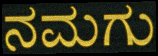
ನಮಗು